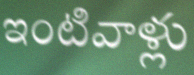
ఇంటివాళ్లు